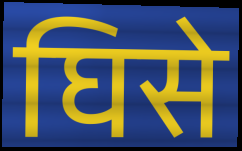
घिसे